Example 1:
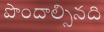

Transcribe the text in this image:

పొందాల్సినది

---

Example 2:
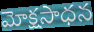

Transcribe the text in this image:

మోక్షసాధన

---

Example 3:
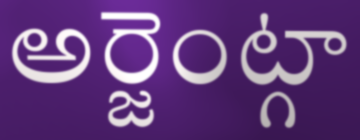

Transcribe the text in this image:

అర్జెంట్గా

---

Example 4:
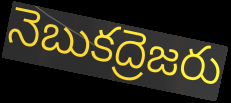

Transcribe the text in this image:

నెబుకద్రెజరు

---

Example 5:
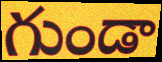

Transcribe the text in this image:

గుండా